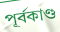
পূর্বকাণ্ড